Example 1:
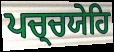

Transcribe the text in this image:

ਪਚ੍ਚਯੇਹਿ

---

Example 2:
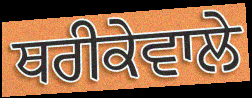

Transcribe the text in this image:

ਥਰੀਕੇਵਾਲੇ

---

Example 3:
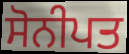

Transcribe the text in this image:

ਸੋਨੀਪਤ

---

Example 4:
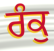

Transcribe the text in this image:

ਰੰਕੁ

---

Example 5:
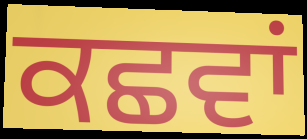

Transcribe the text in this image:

ਕਛਵਾਂ